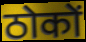
ठोकों